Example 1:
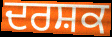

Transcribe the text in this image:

ਦਰਸ਼ਕ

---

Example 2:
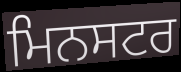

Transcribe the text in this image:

ਮਿਨਸਟਰ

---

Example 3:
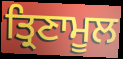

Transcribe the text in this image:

ਤ੍ਰਿਣਾਮੂਲ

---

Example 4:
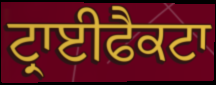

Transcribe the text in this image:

ਟ੍ਰਾਈਫੈਕਟਾ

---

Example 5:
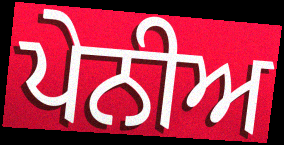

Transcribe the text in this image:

ਪੇਨੀਅ